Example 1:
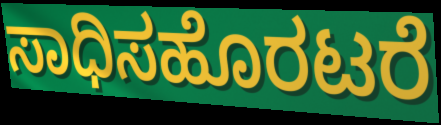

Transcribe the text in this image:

ಸಾಧಿಸಹೊರಟರೆ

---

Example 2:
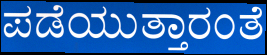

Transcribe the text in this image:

ಪಡೆಯುತ್ತಾರಂತೆ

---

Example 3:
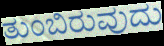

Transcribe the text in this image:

ತುಂಬಿರುವುದು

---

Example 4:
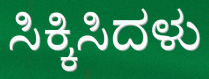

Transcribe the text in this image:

ಸಿಕ್ಕಿಸಿದಳು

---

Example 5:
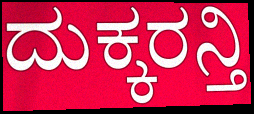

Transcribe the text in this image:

ದುಕ್ಕರನ್ತಿ